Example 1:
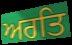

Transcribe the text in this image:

ਅਰਤਿ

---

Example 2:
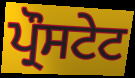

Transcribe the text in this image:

ਪ੍ਰੌਸਟੇਟ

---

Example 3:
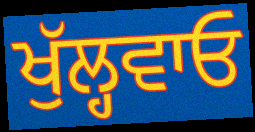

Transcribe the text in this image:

ਖੁੱਲ੍ਹਵਾਓ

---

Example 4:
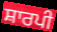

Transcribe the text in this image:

ਸ਼ਾਰਪੀ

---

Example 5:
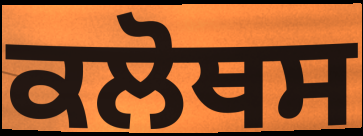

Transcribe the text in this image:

ਕਲੋਥਸ